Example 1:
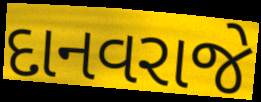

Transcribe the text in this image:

દાનવરાજે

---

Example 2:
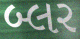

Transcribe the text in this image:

બ્લર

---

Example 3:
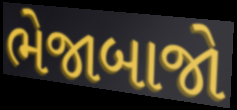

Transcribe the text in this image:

ભેજાબાજો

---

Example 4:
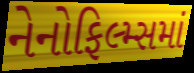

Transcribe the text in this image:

નેનોફિલ્મ્સમાં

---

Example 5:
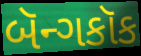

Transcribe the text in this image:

બૅન્ગકૉક